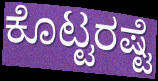
ಕೊಟ್ಟರಷ್ಟೆ